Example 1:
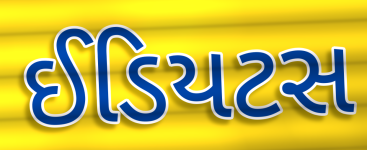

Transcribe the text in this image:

ઈડિયટસ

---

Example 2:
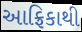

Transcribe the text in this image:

આફ્રિકાથી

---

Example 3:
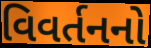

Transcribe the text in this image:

વિવર્તનનો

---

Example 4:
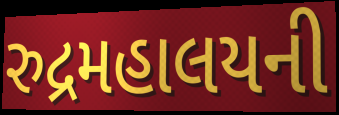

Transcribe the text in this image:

રુદ્રમહાલયની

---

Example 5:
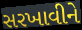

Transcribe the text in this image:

સરખાવીને